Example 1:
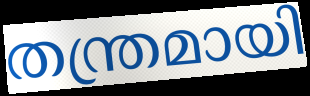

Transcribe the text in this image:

തന്ത്രമായി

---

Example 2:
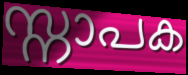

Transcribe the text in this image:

സ്നാപക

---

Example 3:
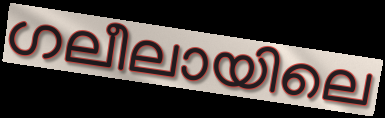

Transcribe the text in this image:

ഗലീലായിലെ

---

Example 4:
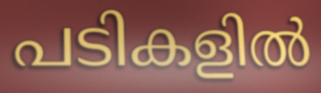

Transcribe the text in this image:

പടികളിൽ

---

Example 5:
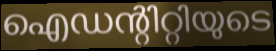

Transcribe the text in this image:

ഐഡന്റിറ്റിയുടെ